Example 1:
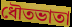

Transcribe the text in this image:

ধৌতভাতা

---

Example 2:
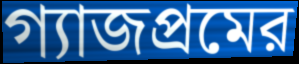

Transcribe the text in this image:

গ্যাজপ্রমের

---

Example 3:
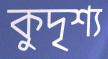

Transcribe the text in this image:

কুদৃশ্য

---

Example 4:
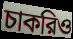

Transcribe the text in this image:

চাকরিও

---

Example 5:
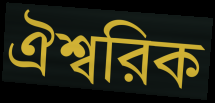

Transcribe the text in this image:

ঐশ্বরিক